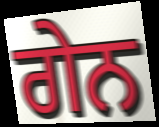
ਗੇਨ